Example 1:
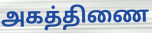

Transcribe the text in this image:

அகத்திணை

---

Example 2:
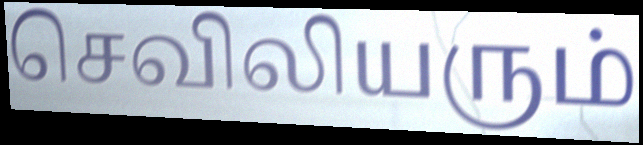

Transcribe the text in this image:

செவிலியரும்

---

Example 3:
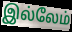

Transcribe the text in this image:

இல்லேம்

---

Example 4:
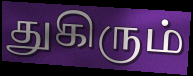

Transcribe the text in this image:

துகிரும்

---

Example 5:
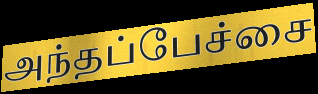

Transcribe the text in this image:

அந்தப்பேச்சை